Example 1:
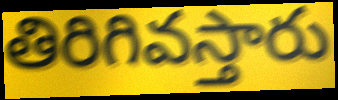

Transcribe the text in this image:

తిరిగివస్తారు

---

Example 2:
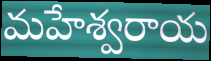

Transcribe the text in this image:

మహేశ్వరాయ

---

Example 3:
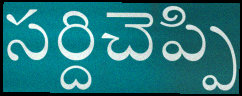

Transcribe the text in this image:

సర్దిచెప్పి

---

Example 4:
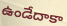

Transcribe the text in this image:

ఉండేదాకా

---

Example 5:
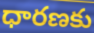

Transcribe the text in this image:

ధారణకు